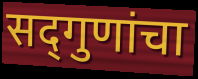
सद्‍गुणांचा